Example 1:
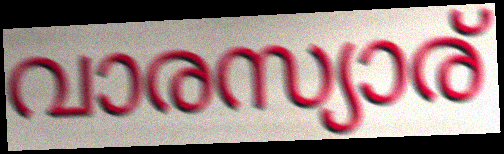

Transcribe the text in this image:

വാരസ്യാര്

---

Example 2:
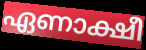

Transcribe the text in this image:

ഏണാക്ഷീ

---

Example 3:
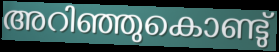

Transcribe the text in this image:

അറിഞ്ഞുകൊണ്ടു്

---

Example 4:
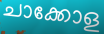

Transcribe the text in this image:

ചാക്കോള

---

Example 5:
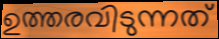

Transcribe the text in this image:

ഉത്തരവിടുന്നത്